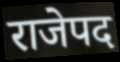
राजेपद